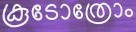
കൂടോത്രോം